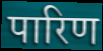
पारिण